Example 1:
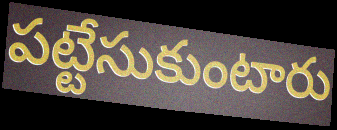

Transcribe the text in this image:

పట్టేసుకుంటారు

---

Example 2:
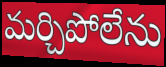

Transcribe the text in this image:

మర్చిపోలేను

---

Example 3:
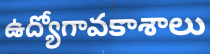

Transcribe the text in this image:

ఉద్యోగావకాశాలు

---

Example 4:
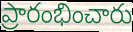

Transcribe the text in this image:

ప్రారంభించారు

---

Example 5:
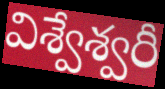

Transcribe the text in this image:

విశ్వేశ్వరీ